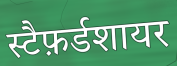
स्टैफ़र्डशायर